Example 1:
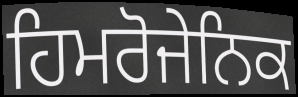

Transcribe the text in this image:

ਹਿਮਰੋਜੇਨਿਕ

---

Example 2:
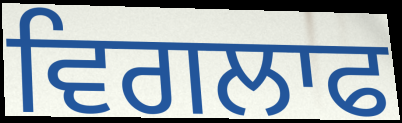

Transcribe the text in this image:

ਵਿਗਲਾਫ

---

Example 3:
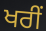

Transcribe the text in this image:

ਖਰੀਂ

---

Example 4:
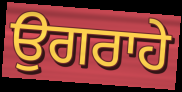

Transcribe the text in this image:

ਉਗਰਾਹੇ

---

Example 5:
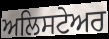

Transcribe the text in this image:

ਅਲਿਸਟੇਅਰ